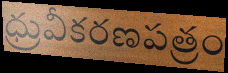
ధ్రువీకరణపత్రం